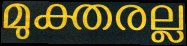
മുക്തരല്ല